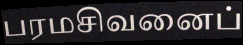
பரமசிவனைப்